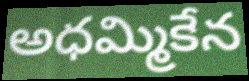
అధమ్మికేన